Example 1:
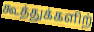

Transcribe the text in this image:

கூத்துக்களிற்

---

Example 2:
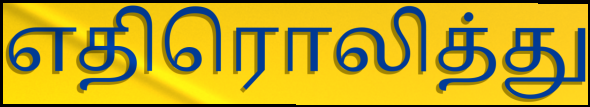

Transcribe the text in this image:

எதிரொலித்து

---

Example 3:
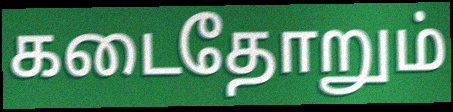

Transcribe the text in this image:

கடைதோறும்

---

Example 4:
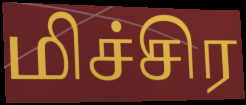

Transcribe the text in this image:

மிச்சிர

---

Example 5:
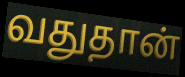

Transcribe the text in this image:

வதுதான்